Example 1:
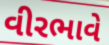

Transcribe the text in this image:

વીરભાવે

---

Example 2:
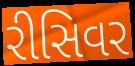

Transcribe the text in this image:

રીસિવર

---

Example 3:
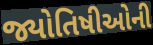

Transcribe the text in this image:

જ્યોતિષીઓની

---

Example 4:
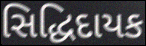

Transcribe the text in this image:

સિદ્ધિદાયક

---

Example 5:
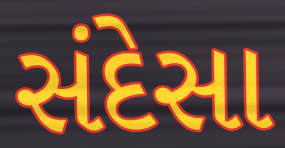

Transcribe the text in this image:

સંદેસા